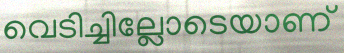
വെടിച്ചില്ലോടെയാണ്